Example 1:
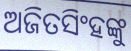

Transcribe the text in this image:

ଅଜିତସିଂହଙ୍କୁ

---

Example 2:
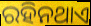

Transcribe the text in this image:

ରହିନଥାଏ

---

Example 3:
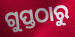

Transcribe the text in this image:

ଗୁପ୍ତଠାରୁ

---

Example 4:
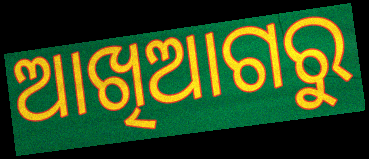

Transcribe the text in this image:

ଆଖିଆଗରୁ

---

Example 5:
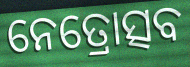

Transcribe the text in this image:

ନେତ୍ରୋତ୍ସବ